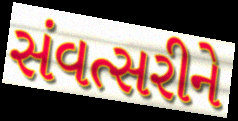
સંવત્સરીને